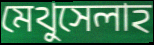
মেথুসেলাহ